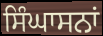
ਸਿੰਘਾਸਨਾਂ